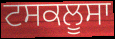
ਟਸਕਲੂਸਾ